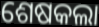
ଶେଷକଲା